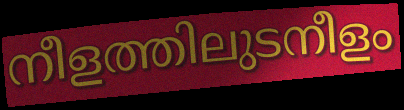
നീളത്തിലുടനീളം